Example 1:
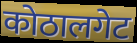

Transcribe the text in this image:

कोठालगेट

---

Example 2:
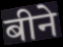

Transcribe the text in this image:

बीने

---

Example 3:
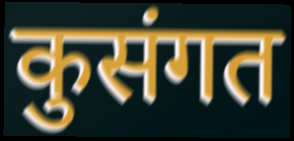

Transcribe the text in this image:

कुसंगत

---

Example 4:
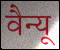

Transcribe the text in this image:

वैन्यू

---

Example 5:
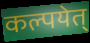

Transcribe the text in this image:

कल्पयेत्